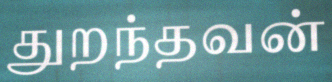
துறந்தவன்